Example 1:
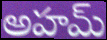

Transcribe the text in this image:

అహమ్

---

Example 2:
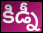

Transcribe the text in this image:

కిడ్నీ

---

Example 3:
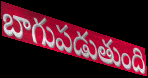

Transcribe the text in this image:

బాగుపడుతుంది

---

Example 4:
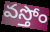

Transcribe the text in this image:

వస్తోం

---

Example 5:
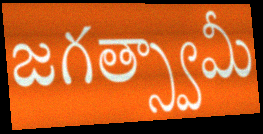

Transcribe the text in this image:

జగత్స్వామీ